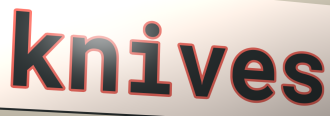
knives